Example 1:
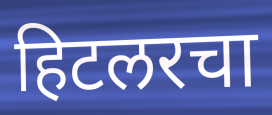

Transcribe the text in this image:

हिटलरचा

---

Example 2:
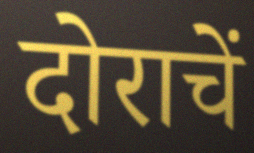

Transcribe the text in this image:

दोराचें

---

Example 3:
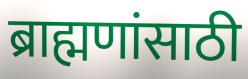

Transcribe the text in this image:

ब्राह्मणांसाठी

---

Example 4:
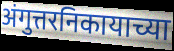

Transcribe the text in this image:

अंगुत्तरनिकायाच्या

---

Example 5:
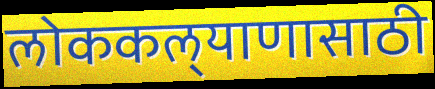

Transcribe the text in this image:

लोककल्याणासाठी